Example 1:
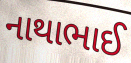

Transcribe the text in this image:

નાથાભાઈ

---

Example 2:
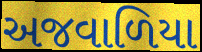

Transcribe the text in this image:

અજવાળિયા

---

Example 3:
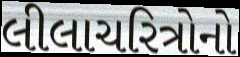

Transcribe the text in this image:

લીલાચરિત્રોનો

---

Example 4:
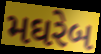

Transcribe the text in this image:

મઘરેબ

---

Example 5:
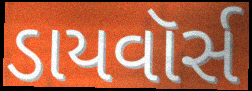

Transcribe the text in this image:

ડાયવૉર્સ